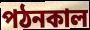
পঠনকাল